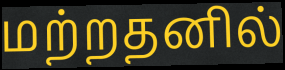
மற்றதனில்